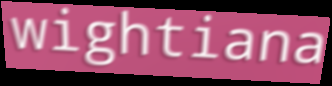
wightiana